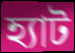
হ্যাট